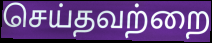
செய்தவற்றை